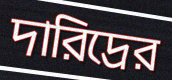
দারিদ্রের